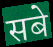
सबे